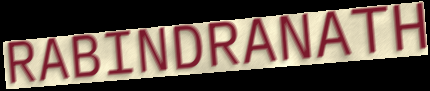
RABINDRANATH